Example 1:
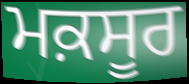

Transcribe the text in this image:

ਮਕ਼ਸੂਰ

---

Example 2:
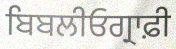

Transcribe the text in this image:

ਬਿਬਲੀਓਗ੍ਰਾਫ਼ੀ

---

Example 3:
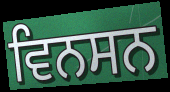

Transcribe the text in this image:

ਵਿਨਸਨ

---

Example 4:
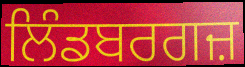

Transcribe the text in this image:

ਲਿੰਡਬਰਗਜ਼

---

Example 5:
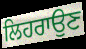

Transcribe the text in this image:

ਲਿਹਰਾਉਣ